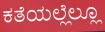
ಕತೆಯಲ್ಲೆಲ್ಲೂ